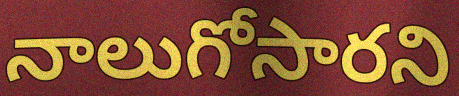
నాలుగోసారని